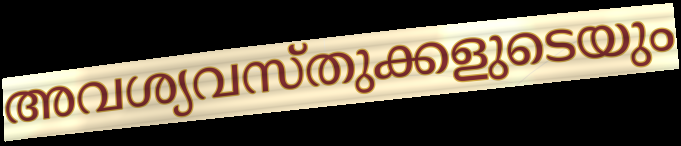
അവശ്യവസ്തുക്കളുടെയും